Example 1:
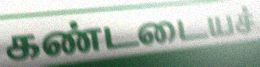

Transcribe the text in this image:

கண்டடையச்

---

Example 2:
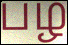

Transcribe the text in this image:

பழ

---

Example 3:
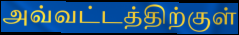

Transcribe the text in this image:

அவ்வட்டத்திற்குள்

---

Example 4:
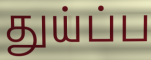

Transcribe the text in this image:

துய்ப்ப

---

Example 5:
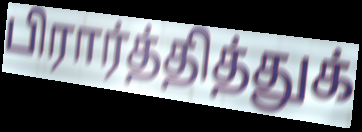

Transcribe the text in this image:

பிரார்த்தித்துக்